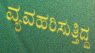
ವ್ಯವಹರಿಸುತ್ತಿದ್ದ